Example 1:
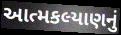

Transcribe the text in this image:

આત્મકલ્યાણનું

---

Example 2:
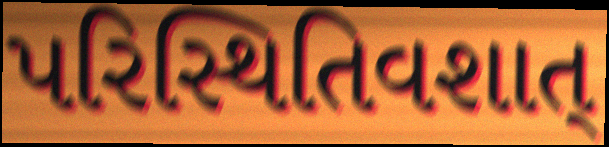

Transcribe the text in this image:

પરિસ્થિતિવશાત્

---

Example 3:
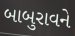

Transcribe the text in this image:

બાબુરાવને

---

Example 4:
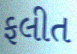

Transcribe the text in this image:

ફલીત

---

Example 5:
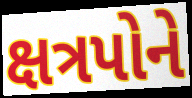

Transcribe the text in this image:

ક્ષત્રપોને